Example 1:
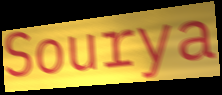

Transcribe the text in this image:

Sourya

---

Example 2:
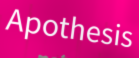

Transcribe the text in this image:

Apothesis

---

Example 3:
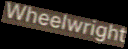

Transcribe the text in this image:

Wheelwright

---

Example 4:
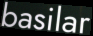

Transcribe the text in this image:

basilar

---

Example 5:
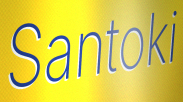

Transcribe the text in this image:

Santoki